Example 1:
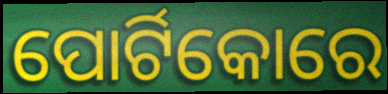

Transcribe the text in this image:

ପୋର୍ଟିକୋରେ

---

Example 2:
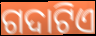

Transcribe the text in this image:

ଗଦାଟିଏ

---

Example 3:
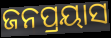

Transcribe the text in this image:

ଜନପ୍ରୟାସ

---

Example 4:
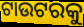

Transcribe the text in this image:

ଟାଉଟରକୁ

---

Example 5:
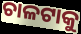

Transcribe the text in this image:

ଚାଳଟାକୁ